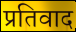
प्रतिवाद